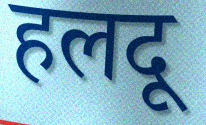
हलदू